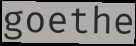
goethe